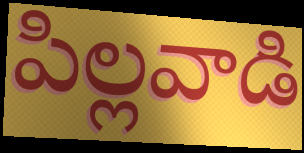
పిల్లవాడి